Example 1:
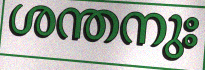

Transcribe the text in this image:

ശന്തനുഃ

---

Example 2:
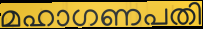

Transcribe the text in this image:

മഹാഗണപതി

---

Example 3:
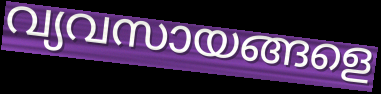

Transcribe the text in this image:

വ്യവസായങ്ങളെ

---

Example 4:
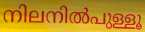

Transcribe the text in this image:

നിലനിൽപുള്ളൂ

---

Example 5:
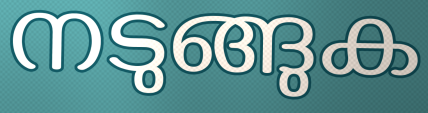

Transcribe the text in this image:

നടുങ്ങുക